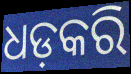
ଧଡ଼କରି